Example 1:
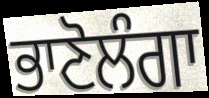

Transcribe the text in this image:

ਭਾਣੋਲੰਗਾ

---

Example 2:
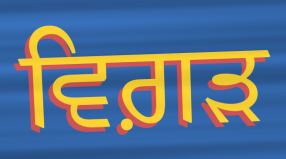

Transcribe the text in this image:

ਵਿਗ਼ੜ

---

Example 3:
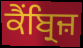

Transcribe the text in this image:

ਕੈਂਬ੍ਰਿਜ਼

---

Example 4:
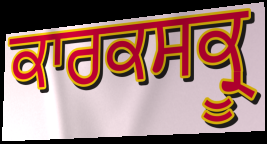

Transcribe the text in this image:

ਕਾਰਕਸਕ੍ਰੂ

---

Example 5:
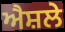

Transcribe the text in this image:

ਐਸ਼ਲੇ